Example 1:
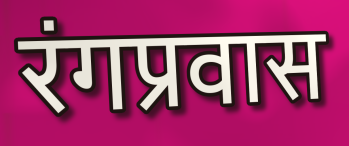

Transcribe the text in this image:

रंगप्रवास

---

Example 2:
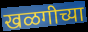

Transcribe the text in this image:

खळगीच्या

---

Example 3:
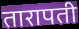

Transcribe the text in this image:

तारापती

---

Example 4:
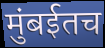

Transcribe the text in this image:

मुंबईतच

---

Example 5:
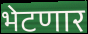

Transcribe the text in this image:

भेटणार